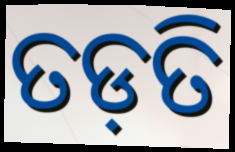
ତଡ଼ତି